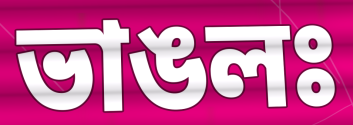
ভাঙলঃ